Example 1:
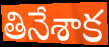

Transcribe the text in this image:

తినేశాక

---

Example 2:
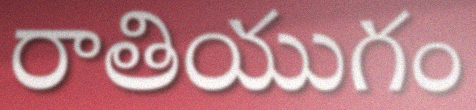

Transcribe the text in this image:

రాతియుగం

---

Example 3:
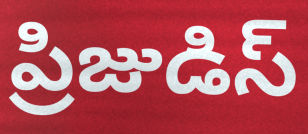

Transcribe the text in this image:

ప్రిజుడిస్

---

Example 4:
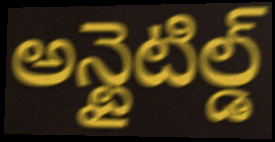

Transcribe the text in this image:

అన్టైటిల్డ్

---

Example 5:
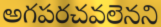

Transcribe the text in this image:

అగపరచవలెనని